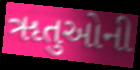
ૠતુઓની